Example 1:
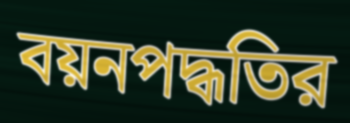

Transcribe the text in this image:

বয়নপদ্ধতির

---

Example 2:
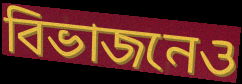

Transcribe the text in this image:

বিভাজনেও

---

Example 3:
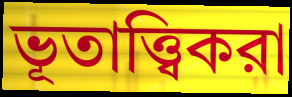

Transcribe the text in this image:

ভূতাত্ত্বিকরা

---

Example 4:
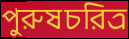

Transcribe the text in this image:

পুরুষচরিত্র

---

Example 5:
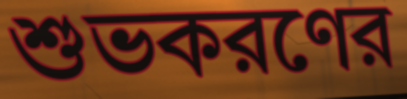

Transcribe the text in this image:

শুভকরণের